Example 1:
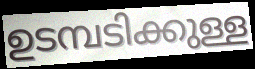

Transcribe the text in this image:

ഉടമ്പടിക്കുള്ള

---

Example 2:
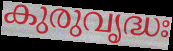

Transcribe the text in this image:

കുരുവൃദ്ധഃ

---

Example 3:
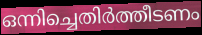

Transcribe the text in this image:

ഒന്നിച്ചെതിർത്തീടണം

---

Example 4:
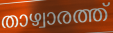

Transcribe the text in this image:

താഴ്വാരത്ത്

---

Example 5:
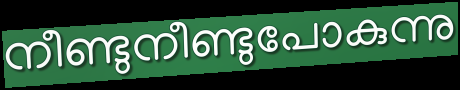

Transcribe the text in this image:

നീണ്ടുനീണ്ടുപോകുന്നു